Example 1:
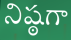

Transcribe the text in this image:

నిష్ఠగా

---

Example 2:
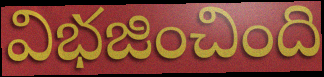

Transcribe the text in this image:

విభజించింది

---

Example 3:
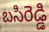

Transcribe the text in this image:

బసిరెడ్డి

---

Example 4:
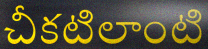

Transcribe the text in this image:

చీకటిలాంటి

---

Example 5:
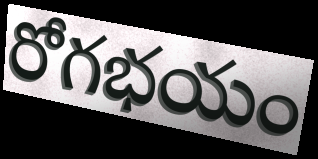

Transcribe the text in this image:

రోగభయం